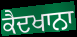
ਕੈਦਖਾਨਾ